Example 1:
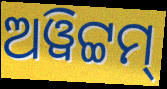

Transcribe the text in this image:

ଅୱିଟ୍ଟମ୍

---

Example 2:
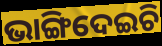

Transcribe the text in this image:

ଭାଙ୍ଗିଦେଇଚି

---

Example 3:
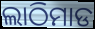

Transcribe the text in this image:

ଲାଠିମାଡ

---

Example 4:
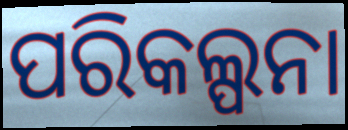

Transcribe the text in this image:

ପରିକଲ୍ପନା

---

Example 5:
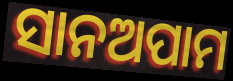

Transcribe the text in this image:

ସାନଅପାମ